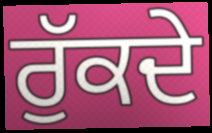
ਰੁੱਕਦੇ